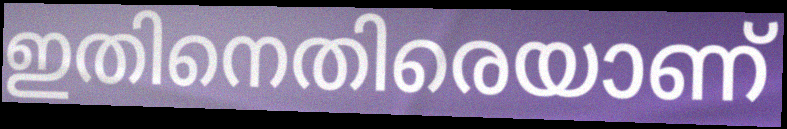
ഇതിനെതിരെയാണ്